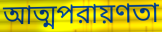
আত্মপরায়ণতা